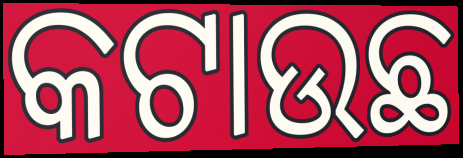
କଟାଉଛ